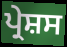
ਪ੍ਰੇਸ਼ਸ